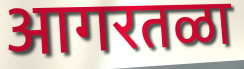
आगरतळा